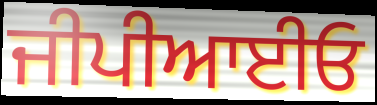
ਜੀਪੀਆਈਓ